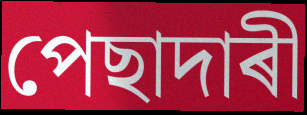
পেছাদাৰী